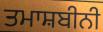
ਤਮਾਸ਼ਬੀਨੀ